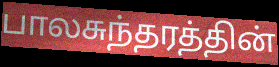
பாலசுந்தரத்தின்